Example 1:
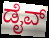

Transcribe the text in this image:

ಡೈವ್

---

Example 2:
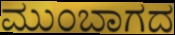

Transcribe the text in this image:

ಮುಂಬಾಗದ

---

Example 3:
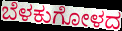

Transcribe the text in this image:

ಬೆಳಕುಗೋಳದ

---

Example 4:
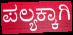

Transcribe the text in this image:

ಪಲ್ಯಕ್ಕಾಗಿ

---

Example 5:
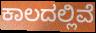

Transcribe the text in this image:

ಕಾಲದಲ್ಲಿವೆ